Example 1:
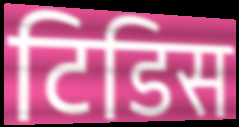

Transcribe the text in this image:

टिडिस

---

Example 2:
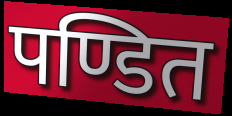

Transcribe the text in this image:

पण्डित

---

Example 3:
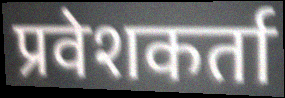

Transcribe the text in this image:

प्रवेशकर्ता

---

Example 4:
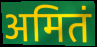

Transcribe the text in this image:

अमितं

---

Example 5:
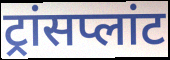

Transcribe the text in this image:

ट्रांसप्लांट